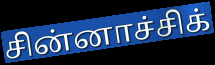
சின்னாச்சிக்